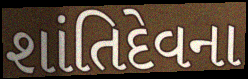
શાંતિદેવના